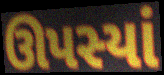
ઊપસ્યાં